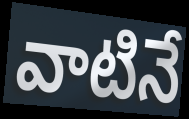
వాటినే